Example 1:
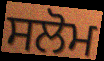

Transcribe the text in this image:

ਸਲੋਮ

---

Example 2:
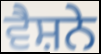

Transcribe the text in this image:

ਵੈਸ਼ਨੇ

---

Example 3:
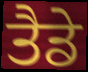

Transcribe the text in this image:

ਤੈਡੇ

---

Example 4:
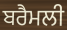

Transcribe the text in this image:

ਬਰੈਮਲੀ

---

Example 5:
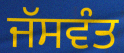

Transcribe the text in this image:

ਜੱਸਵੰਤ